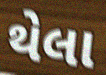
થેલા